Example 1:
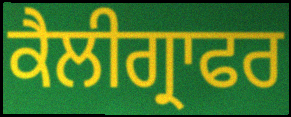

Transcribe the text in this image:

ਕੈਲੀਗ੍ਰਾਫਰ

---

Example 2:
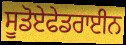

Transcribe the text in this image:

ਸੂਡੋਏਫੇਡਰਾਈਨ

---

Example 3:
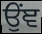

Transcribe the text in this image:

ਉਂਞ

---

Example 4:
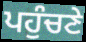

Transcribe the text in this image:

ਪਹੁੰਚਣੇ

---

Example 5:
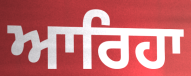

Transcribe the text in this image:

ਆਰਿਹਾ